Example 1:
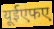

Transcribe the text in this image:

यूईएफए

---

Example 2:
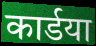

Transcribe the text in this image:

कार्डया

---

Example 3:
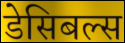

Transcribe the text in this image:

डेसिबल्स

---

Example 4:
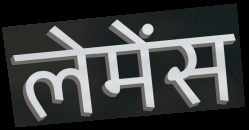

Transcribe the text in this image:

लेमेंस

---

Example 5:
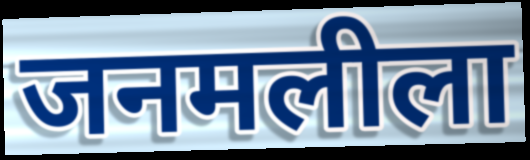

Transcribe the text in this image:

जनमलीला